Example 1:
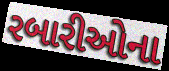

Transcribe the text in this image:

રબારીઓના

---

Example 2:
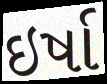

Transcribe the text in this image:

ઇર્ષા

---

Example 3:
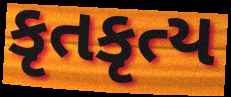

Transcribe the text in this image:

કૃતકૃત્ય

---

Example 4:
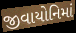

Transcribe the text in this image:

જીવાયોનિમાં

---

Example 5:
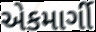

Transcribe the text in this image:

એકમાર્ગી